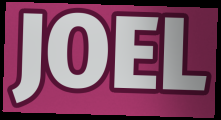
JOEL